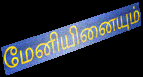
மேனியினையும்